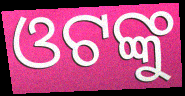
ଓଟଙ୍କୁ